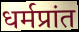
धर्मप्रांत